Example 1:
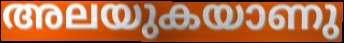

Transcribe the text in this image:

അലയുകയാണു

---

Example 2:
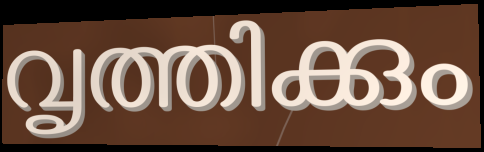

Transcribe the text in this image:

വൃത്തിക്കും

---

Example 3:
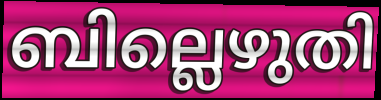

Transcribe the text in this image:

ബില്ലെഴുതി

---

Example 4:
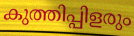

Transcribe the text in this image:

കുത്തിപ്പിളരും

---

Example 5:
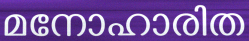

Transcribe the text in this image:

മനോഹാരിത